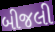
બીજલી